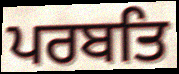
ਪਰਬਤਿ